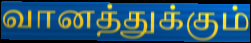
வானத்துக்கும்